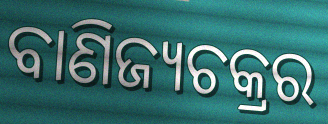
ବାଣିଜ୍ୟଚକ୍ରର